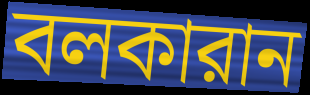
বলকারান